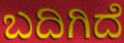
ಬದಿಗಿದೆ